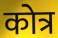
कोत्र